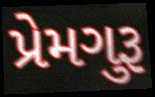
પ્રેમગુરૂ